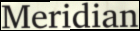
Meridian